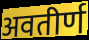
अवतीर्ण